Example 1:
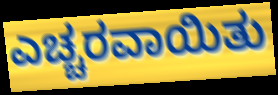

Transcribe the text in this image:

ಎಚ್ಚರವಾಯಿತು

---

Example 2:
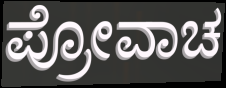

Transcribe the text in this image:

ಪ್ರೋವಾಚ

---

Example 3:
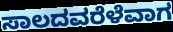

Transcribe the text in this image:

ಸಾಲದವರೆಳೆವಾಗ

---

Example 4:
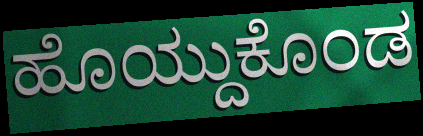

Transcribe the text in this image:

ಹೊಯ್ದುಕೊಂಡ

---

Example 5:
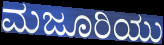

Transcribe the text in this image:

ಮಜೂರಿಯು